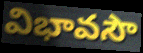
విభావసౌ